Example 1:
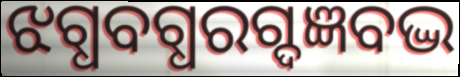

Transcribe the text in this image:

ଝଗ୍ଧବଗ୍ଧରଗ୍ଦଜ୍ଞବଦ୍ଭ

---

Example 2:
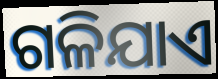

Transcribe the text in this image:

ଗଳିଯାଏ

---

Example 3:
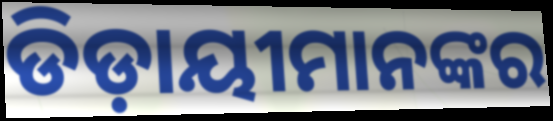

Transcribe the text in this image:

ଡିଡ଼ାୟୀମାନଙ୍କର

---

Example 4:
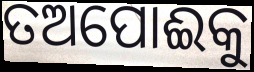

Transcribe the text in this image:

ତଅପୋଈକୁ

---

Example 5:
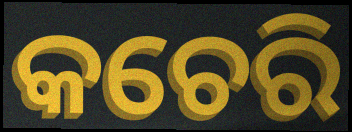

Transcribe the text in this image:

କଚେରି